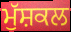
ਮੁੱਸ਼ਕਲ